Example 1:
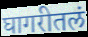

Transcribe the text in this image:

घागरीतलं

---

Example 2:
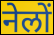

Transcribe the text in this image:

नेलों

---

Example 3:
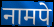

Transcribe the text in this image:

नामपे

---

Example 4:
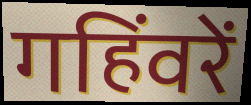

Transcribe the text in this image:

गहिंवरें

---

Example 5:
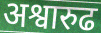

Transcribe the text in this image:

अश्वारुढ